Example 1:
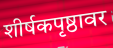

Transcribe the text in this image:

शीर्षकपृष्ठावर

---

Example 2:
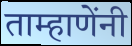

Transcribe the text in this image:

ताम्हाणेंनी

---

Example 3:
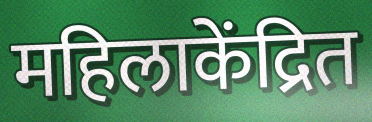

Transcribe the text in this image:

महिलाकेंद्रित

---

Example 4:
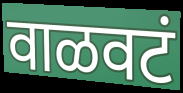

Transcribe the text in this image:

वाळवटं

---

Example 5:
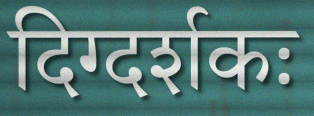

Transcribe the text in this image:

दिग्दर्शकः